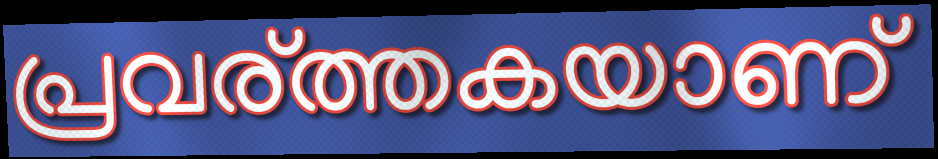
പ്രവര്ത്തകയാണ്